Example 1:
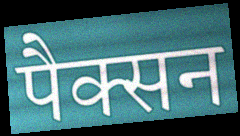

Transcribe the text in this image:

पैक्सन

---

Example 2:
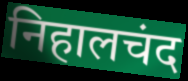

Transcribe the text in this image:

निहालचंद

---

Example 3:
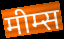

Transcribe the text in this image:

मीम्‍स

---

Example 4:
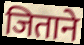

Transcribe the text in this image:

जिताने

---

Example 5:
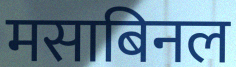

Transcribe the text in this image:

मसाबिनल